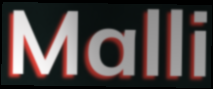
Malli